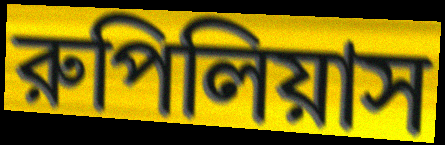
রুপিলিয়াস